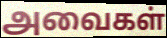
அவைகள்